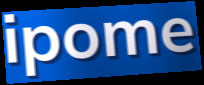
ipome